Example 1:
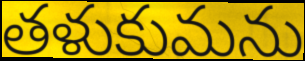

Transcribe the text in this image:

తళుకుమను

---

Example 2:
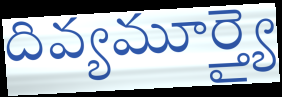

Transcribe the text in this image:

దివ్యమూర్త్యై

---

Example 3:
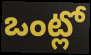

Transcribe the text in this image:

ఒంట్లో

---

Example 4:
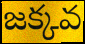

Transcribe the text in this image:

జక్కవ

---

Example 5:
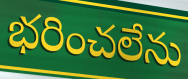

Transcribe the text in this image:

భరించలేను